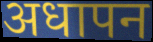
अधापन